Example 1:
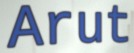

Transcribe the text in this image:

Arut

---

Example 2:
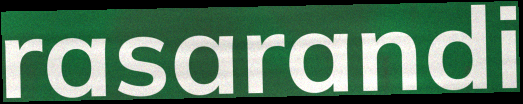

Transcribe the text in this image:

rasarandi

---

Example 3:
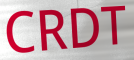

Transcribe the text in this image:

CRDT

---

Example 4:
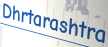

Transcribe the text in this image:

Dhrtarashtra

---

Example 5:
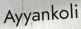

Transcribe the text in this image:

Ayyankoli